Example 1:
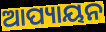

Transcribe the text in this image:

ଆପ୍ୟାୟନ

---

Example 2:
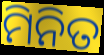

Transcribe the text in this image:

ମିନିତ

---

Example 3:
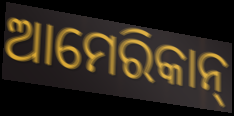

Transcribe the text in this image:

ଆମେରିକାନ୍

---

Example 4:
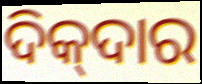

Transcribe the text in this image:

ଦିକ୍‍ଦାର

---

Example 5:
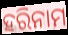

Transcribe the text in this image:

ହରିନାମ